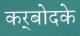
कर्बोदके